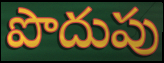
పొదుపు